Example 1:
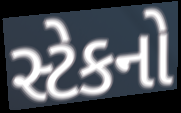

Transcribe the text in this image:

સ્ટેકનો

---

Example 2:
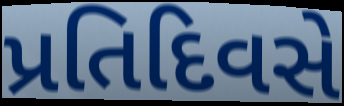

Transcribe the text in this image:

પ્રતિદિવસે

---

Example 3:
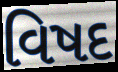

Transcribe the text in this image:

વિષદ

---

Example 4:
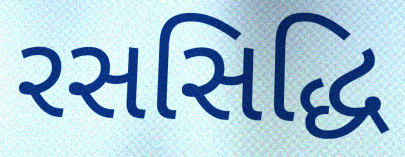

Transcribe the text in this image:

રસસિદ્ધિ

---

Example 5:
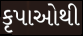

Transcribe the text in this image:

કૃપાઓથી